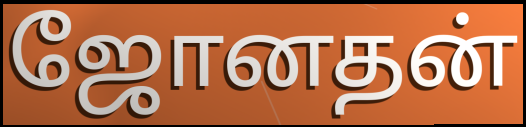
ஜோனதன்